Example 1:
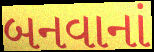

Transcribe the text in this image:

બનવાનાં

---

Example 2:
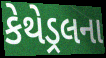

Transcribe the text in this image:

કેથેડ્રલના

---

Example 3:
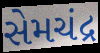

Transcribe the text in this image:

સેમચંદ્ર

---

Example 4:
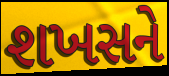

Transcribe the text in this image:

શખસને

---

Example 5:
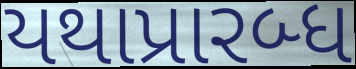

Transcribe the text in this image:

યથાપ્રારબ્ધ